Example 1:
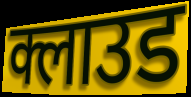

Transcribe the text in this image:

क्‍लाउड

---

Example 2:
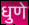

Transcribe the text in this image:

धुणे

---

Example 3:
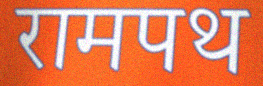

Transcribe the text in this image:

रामपथ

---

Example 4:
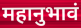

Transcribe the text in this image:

महानुभावं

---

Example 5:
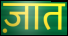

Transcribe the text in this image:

ज़ात